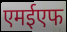
एमईएफ